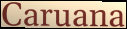
Caruana